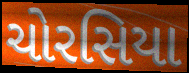
ચોરસિયા